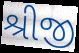
શ્રીજી